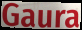
Gaura